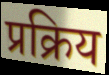
प्रक्रिय